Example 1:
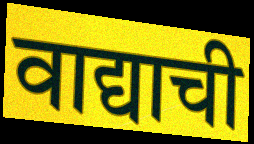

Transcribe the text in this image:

वाद्याची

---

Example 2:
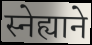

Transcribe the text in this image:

स्नेह्याने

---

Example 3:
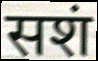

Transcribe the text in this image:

सशं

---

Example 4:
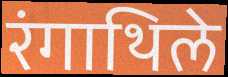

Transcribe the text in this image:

रंगाथिले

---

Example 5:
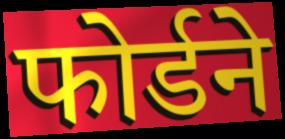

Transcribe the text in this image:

फोर्डने